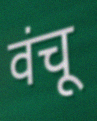
वंचू